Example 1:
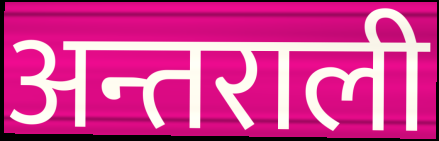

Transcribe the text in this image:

अन्तराली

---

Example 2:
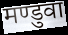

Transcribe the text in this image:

मण्डुवा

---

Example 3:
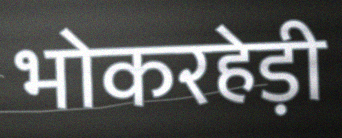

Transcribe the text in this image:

भोकरहेड़ी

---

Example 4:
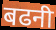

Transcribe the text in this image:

बढनी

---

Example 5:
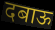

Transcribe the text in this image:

दबाऊ